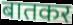
बातकर